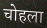
चोहला